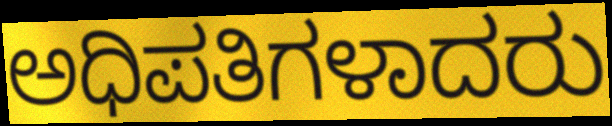
ಅಧಿಪತಿಗಳಾದರು